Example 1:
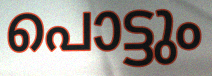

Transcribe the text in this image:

പൊട്ടും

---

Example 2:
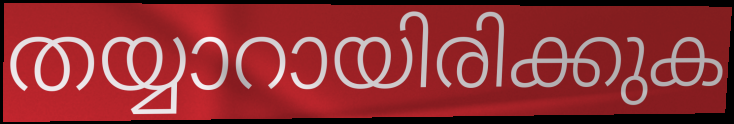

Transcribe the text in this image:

തയ്യാറായിരിക്കുക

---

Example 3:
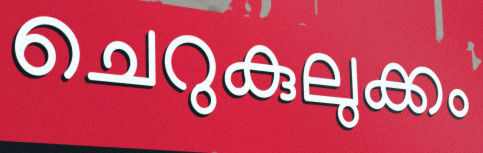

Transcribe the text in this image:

ചെറുകുലുക്കം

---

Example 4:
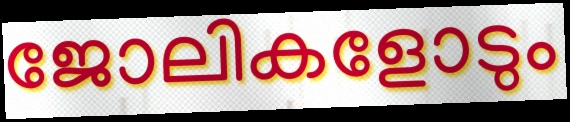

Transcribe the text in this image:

ജോലികളോടും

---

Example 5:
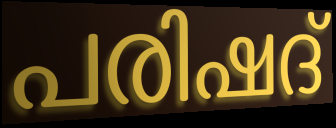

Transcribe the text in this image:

പരിഷദ്